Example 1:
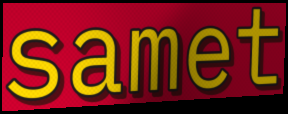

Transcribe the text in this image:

samet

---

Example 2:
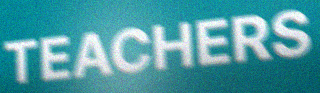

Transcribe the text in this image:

TEACHERS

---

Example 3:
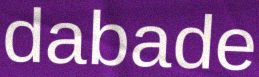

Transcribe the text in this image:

dabade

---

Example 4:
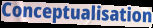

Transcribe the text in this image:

Conceptualisation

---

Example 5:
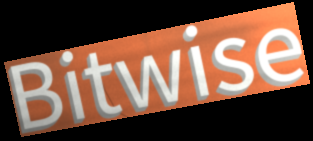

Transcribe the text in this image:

Bitwise